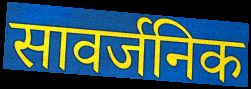
सावर्जनिक